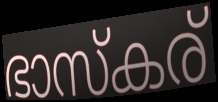
ഭാസ്കര്